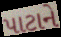
પાટાને